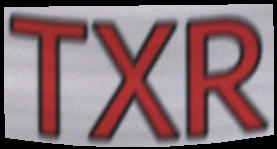
TXR